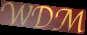
WDM